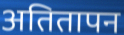
अतितापन